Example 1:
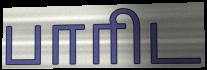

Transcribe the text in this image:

பாரிட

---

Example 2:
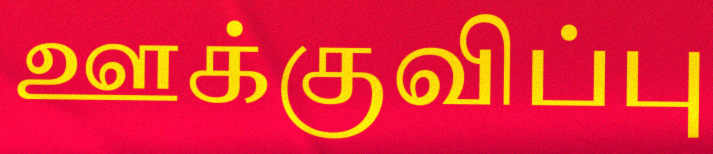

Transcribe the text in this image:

ஊக்குவிப்பு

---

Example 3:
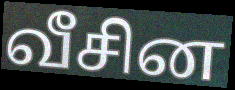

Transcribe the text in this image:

வீசின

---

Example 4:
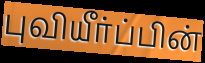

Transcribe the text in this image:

புவியீர்ப்பின்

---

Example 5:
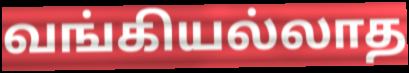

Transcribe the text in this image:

வங்கியல்லாத